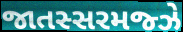
જાતસ્સરમજ્ઝે